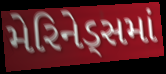
મેરિનેડ્સમાં